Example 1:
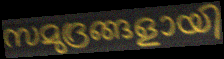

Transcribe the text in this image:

സമുദ്രങ്ങളായി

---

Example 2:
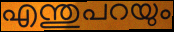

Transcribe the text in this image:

എന്തുപറയും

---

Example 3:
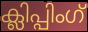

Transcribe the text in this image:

ക്ലിപ്പിംഗ്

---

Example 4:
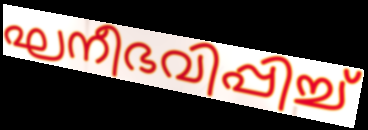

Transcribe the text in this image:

ഘനീഭവിപ്പിച്ച്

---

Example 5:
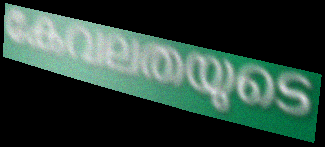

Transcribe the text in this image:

കേവലതയുടെ